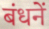
बंधनें